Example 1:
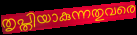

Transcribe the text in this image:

തൃപ്തിയാകുന്നതുവരെ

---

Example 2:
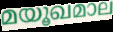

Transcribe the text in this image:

മയൂഖമാല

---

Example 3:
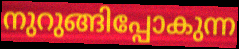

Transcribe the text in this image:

നുറുങ്ങിപ്പോകുന്ന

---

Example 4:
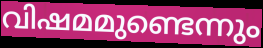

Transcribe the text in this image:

വിഷമമുണ്ടെന്നും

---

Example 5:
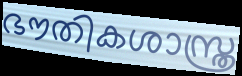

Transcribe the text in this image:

ഭൗതികശാസ്ത്ര